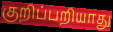
குறிப்பறியாது